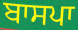
ਬਾਸਪਾ